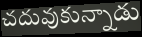
చదువుకున్నాడు